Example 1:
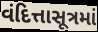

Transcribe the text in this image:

વંદિત્તાસૂત્રમાં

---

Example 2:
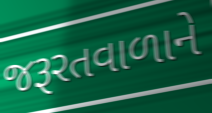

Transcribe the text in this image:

જરૂરતવાળાને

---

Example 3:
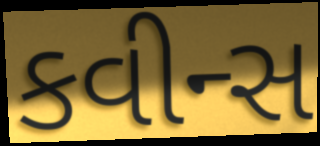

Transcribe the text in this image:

કવીન્સ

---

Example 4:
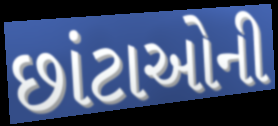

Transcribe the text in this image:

છાંટાઓની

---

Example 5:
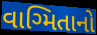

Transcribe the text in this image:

વાગ્મિતાનો